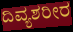
ದಿವ್ಯಶರೀರ